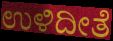
ಉಳಿದೀತೆ